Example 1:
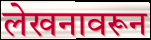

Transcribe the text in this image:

लेखनावरून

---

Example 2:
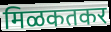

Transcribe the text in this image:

मिळकतकर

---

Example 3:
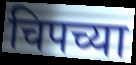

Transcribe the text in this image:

चिपच्या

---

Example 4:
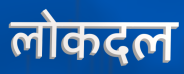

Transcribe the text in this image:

लोकदल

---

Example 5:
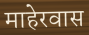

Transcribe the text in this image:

माहेरवास